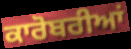
ਕਾਰੋਬਰੀਆਂ